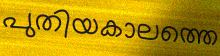
പുതിയകാലത്തെ